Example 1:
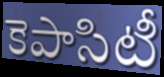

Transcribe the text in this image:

కెపాసిటీ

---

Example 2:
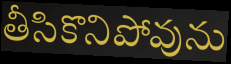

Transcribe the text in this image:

తీసికొనిపోవును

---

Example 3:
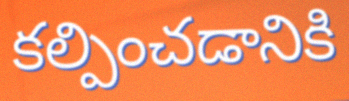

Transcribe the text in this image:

కల్పించడానికి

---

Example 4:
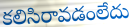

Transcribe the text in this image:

కలిసిరావడంలేదు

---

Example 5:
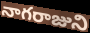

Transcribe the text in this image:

నాగరాజుని